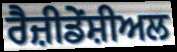
ਰੈਜ਼ੀਡੇਂਸ਼ੀਅਲ